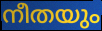
നീതയും